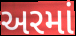
અરમાં